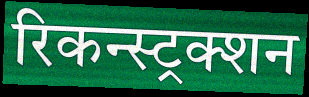
रिकन्स्ट्रक्शन